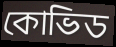
কোভিড